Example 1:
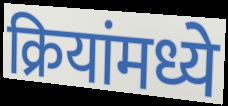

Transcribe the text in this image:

क्रियांमध्ये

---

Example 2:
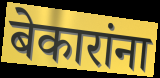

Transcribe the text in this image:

बेकारांना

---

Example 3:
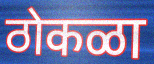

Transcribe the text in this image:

ठोकळा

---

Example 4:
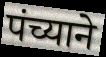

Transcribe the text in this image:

पंच्याने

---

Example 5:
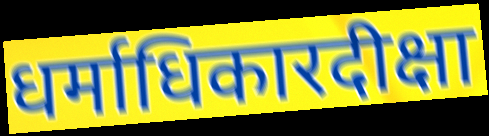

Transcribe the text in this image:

धर्माधिकारदीक्षा